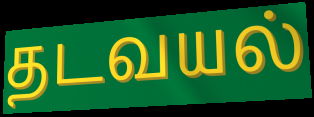
தடவயல்